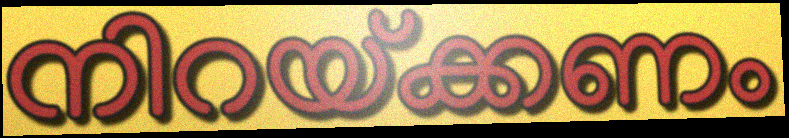
നിറയ്‌ക്കണം